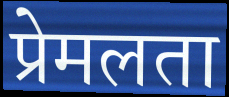
प्रेमलता